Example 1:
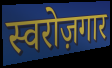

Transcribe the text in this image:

स्वरोज़गार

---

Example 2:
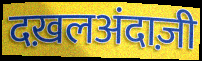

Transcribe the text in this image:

दख़लअंदाज़ी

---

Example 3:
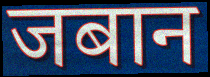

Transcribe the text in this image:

जबान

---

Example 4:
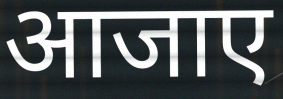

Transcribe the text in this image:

आजाए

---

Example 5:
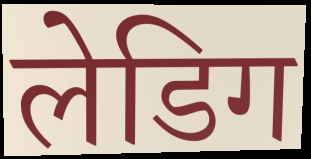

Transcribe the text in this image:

लेडिग